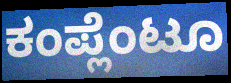
ಕಂಪ್ಲೆಂಟೂ